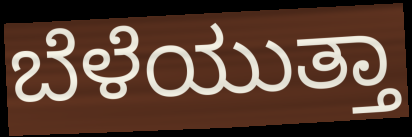
ಬೆಳೆಯುತ್ತಾ